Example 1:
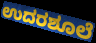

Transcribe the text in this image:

ಉದರಶೂಲೆ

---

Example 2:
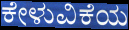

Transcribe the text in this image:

ಕೇಳುವಿಕೆಯ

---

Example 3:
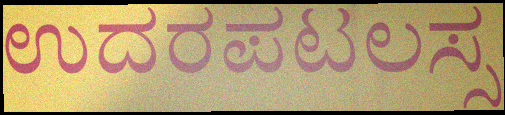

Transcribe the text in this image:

ಉದರಪಟಲಸ್ಸ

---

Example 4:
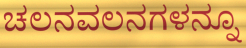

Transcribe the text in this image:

ಚಲನವಲನಗಳನ್ನೂ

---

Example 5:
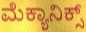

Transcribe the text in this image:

ಮೆಕ್ಯಾನಿಕ್ಸ್